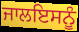
ਜਾਲਇਸਨੂੰ